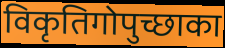
विकृतिगोपुच्छाका